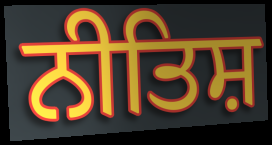
ਨੀਤਿਸ਼